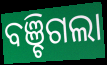
ବଞ୍ଚିଗଲା